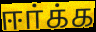
ஈர்க்க